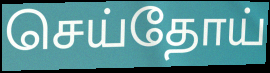
செய்தோய்